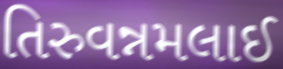
તિરુવન્નમલાઈ